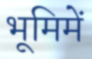
भूमिमें